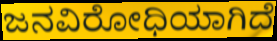
ಜನವಿರೋಧಿಯಾಗಿದೆ